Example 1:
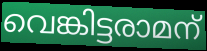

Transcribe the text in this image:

വെങ്കിട്ടരാമന്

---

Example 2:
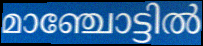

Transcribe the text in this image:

മാഞ്ചോട്ടിൽ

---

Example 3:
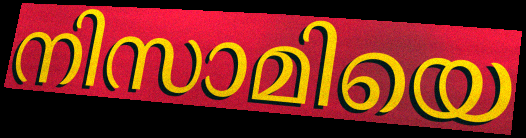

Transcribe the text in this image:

നിസാമിയെ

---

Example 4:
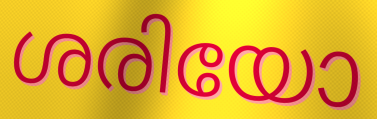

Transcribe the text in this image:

ശരിയോ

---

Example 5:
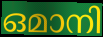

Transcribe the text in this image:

ഒമാനി